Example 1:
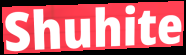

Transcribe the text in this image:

Shuhite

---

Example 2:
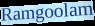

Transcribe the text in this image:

Ramgoolam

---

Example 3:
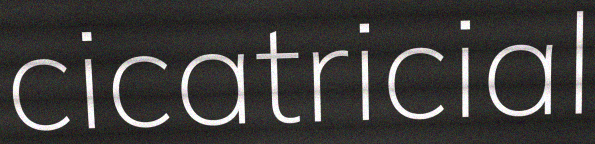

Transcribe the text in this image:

cicatricial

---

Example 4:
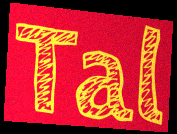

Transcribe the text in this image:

Tal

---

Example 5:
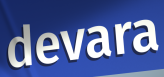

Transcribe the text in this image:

devara